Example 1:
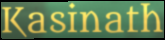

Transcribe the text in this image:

Kasinath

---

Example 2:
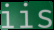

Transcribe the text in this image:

iis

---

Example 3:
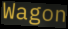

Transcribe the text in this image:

Wagon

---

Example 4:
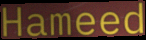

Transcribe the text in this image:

Hameed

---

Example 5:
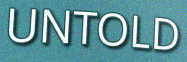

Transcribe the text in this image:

UNTOLD